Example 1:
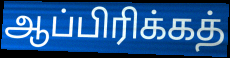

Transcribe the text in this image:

ஆப்பிரிக்கத்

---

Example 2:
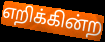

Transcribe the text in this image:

எறிக்கின்ற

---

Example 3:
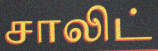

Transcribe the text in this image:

சாலிட்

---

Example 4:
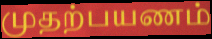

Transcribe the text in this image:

முதற்பயணம்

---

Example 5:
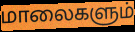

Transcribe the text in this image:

மாலைகளும்